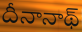
దీనానాథ్